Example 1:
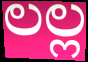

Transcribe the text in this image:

లల్ల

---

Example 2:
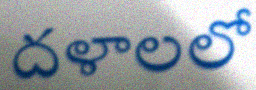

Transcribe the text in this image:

దళాలలో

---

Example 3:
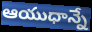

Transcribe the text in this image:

ఆయుధాన్నే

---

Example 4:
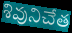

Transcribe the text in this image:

శివునిచేత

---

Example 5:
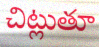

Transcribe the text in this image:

చిట్లుతూ